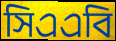
সিএএবি